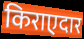
किराएदार